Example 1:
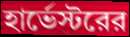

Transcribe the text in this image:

হার্ভেস্টরের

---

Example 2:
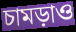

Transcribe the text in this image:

চামড়াও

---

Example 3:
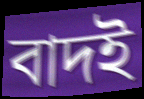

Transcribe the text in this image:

বাদই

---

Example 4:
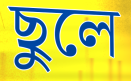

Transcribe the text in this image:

ছুলে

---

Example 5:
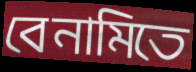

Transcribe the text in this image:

বেনামিতে